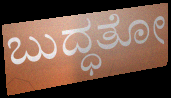
ಬುದ್ಧತೋ